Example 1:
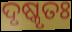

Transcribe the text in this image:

ଦୃଷ୍କୃତଃ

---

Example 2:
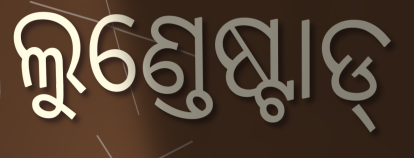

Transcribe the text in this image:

ଲୁଣ୍ଡେଷ୍ଟାଡ୍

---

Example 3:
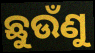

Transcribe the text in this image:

ଛୁଉଁଣୁ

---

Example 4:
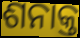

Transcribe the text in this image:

ଶନାକ୍ତ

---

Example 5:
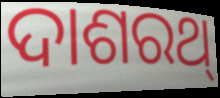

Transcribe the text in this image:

ଦାଶରଥ୍